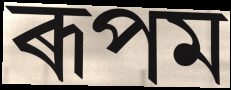
ৰূপম